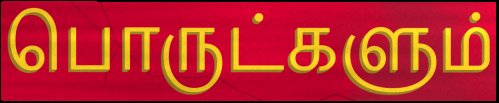
பொருட்களும்